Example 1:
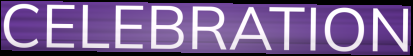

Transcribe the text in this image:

CELEBRATION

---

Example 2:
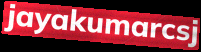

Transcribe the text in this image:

jayakumarcsj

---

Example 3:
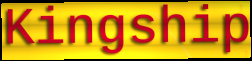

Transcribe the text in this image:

Kingship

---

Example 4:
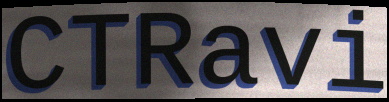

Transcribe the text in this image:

CTRavi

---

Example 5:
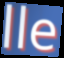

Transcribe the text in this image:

lle